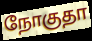
நோகுதா